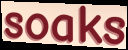
soaks